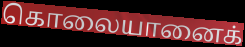
கொலையானைக்